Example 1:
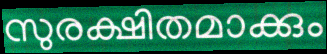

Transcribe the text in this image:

സുരക്ഷിതമാക്കും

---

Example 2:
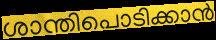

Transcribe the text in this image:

ശാന്തിപൊടിക്കാൻ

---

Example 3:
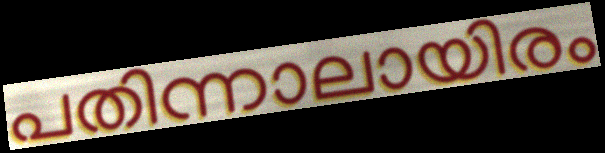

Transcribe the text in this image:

പതിന്നാലായിരം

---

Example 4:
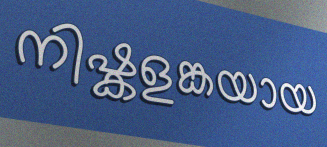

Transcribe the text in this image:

നിഷ്കളങ്കയായ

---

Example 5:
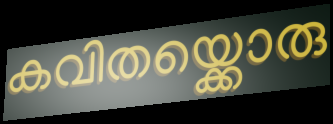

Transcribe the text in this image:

കവിതയ്ക്കൊരു